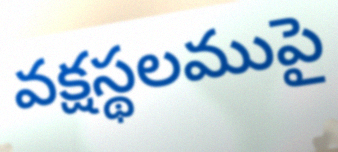
వక్షస్థలముపై